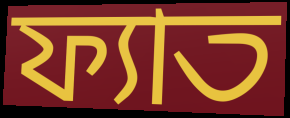
ফ্যাত